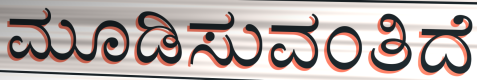
ಮೂಡಿಸುವಂತಿದೆ